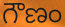
గౌణం